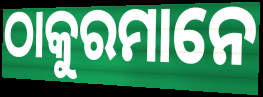
ଠାକୁରମାନେ